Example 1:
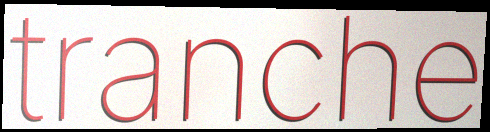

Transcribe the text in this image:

tranche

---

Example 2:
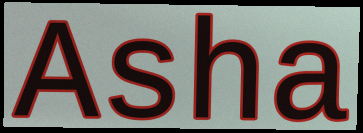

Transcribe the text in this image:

Asha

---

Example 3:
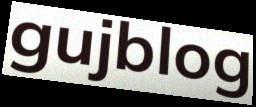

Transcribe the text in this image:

gujblog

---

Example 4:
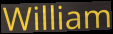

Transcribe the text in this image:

William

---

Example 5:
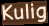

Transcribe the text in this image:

Kulig